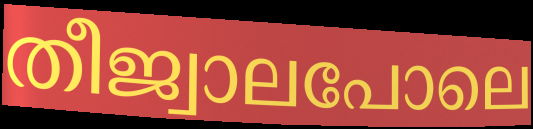
തീജ്വാലപോലെ